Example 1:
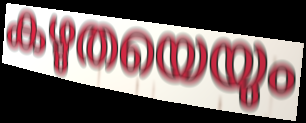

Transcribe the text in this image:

കഴുതയെയും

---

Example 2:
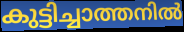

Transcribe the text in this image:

കുട്ടിച്ചാത്തനിൽ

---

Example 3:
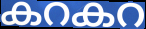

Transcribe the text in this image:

കറകറ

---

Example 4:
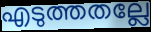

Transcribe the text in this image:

എടുത്തതല്ലേ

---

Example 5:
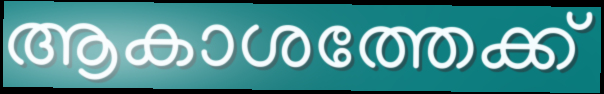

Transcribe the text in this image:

ആകാശത്തേക്ക്